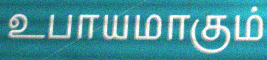
உபாயமாகும்